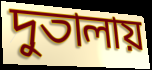
দুতালায়